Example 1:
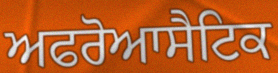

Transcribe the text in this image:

ਅਫਰੋਆਸੈਟਿਕ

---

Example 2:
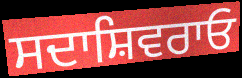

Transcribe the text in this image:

ਸਦਾਸ਼ਿਵਰਾਓ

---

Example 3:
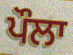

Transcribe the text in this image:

ਪੌਲਾ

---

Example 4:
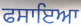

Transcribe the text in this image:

ਫਸਾਇਆ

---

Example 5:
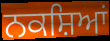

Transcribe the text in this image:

ਨਕਸ਼ਿਆਂ